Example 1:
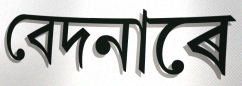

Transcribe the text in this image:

বেদনাৰে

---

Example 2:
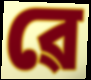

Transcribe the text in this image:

ৱে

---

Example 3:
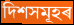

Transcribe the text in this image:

দিশসমূহৰ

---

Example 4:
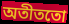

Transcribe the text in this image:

অতীততো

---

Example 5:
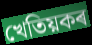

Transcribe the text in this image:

খেতিয়কৰ